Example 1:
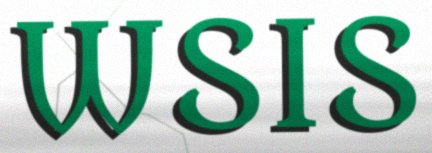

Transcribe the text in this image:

WSIS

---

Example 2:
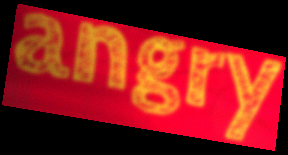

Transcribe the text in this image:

angry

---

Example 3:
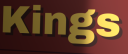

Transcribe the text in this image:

Kings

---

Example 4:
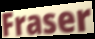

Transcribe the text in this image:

Fraser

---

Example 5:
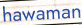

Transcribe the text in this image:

hawaman